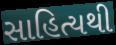
સાહિત્યથી